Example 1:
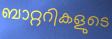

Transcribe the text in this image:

ബാറ്ററികളുടെ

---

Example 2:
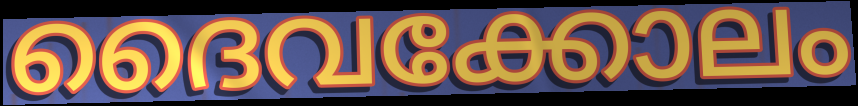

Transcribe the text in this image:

ദൈവക്കോലം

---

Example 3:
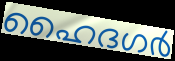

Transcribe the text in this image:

ഹൈദഗർ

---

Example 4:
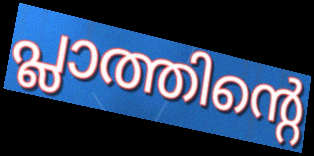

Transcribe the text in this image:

പ്ലാത്തിന്റെ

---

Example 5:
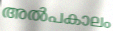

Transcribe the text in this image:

അൽപകാലം